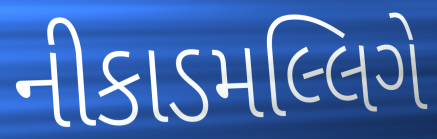
નીકાડમલ્લિગે